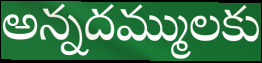
అన్నదమ్ములకు